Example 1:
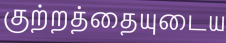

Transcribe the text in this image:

குற்றத்தையுடைய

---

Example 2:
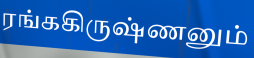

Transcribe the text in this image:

ரங்ககிருஷ்ணனும்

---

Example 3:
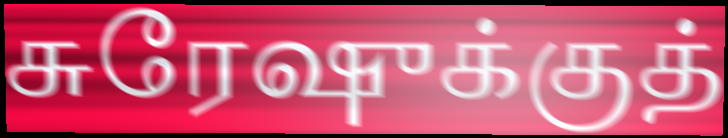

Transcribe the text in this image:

சுரேஷுக்குத்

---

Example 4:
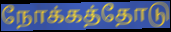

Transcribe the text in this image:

நோக்கத்தோடு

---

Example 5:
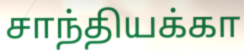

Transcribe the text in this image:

சாந்தியக்கா